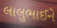
લાલુભાઈને